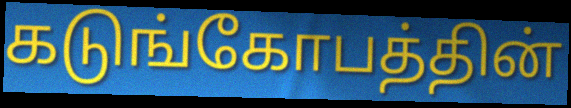
கடுங்கோபத்தின்